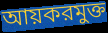
আয়করমুক্ত